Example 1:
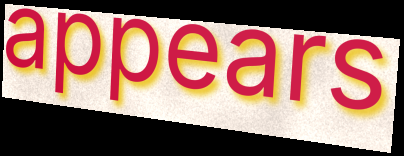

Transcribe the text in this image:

appears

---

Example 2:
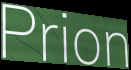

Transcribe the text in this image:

Prion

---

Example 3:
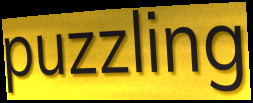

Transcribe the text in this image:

puzzling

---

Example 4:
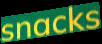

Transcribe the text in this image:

snacks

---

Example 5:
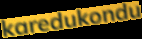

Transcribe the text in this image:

karedukondu